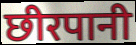
छीरपानी